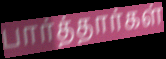
பார்த்தார்கள்